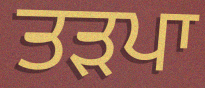
ਤੜਪਾ